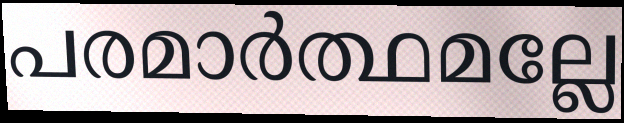
പരമാർത്ഥമല്ലേ